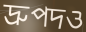
দ্রুপদও